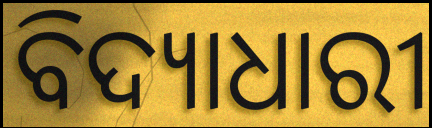
ବିଦ୍ୟାଧାରୀ